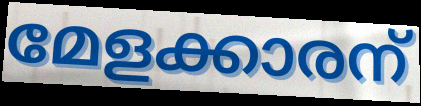
മേളക്കാരന്